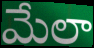
మేలా